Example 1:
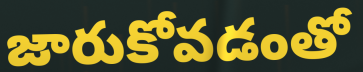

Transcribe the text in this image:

జారుకోవడంతో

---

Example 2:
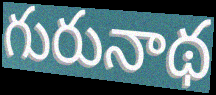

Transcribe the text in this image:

గురునాథ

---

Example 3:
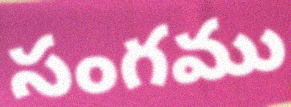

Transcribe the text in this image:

సంగము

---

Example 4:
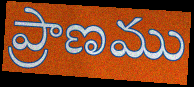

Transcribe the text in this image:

ప్రాణము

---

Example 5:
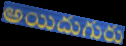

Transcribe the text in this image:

అయిదుగురు